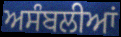
ਅਸੰਬਲੀਆਂ